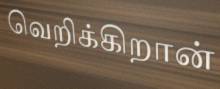
வெறிக்கிறான்